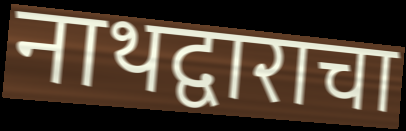
नाथद्वाराचा